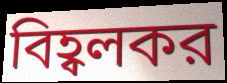
বিহ্বলকর